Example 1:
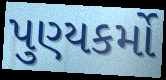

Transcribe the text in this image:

પુણ્યકર્મો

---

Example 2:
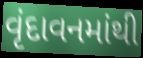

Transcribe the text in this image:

વૃંદાવનમાંથી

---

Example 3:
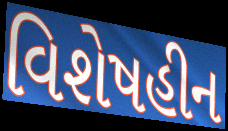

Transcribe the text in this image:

વિશેષહીન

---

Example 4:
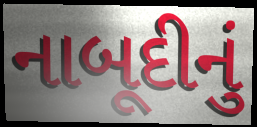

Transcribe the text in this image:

નાબૂદીનું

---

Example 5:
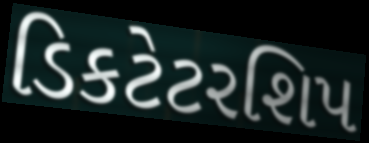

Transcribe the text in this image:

ડિકટેટરશિપ